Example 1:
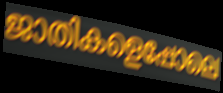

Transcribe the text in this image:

ജാതികളെപ്പോലെ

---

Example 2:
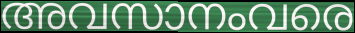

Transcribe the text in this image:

അവസാനംവരെ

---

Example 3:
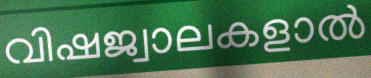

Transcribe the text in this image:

വിഷജ്വാലകളാൽ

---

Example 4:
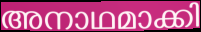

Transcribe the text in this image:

അനാഥമാക്കി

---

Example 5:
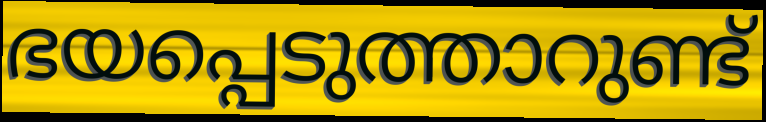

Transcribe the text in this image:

ഭയപ്പെടുത്താറുണ്ട്